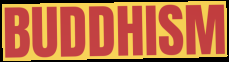
BUDDHISM